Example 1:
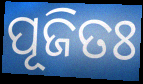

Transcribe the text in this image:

ପୂଜିତଃ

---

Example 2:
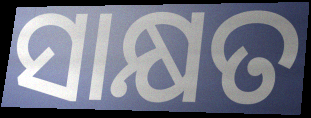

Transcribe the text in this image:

ସାକ୍ଷତ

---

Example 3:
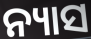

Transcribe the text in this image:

ନ୍ୟାସ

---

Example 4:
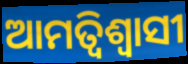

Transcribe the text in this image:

ଆମତ୍ବିଶ୍ୱାସୀ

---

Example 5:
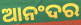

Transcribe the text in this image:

ଆନଂଦର